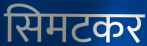
सिमटकर